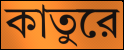
কাতুরে